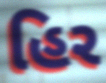
હિર